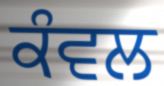
ਕੰਵਲ